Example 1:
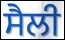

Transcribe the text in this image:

ਸੈਲੀ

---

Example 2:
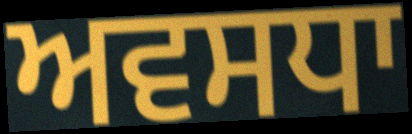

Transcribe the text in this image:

ਅਵਸਧਾ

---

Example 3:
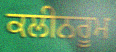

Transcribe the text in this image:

ਕਲੀਨਰੂਮ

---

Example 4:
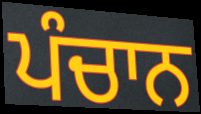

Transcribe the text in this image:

ਪੰਚਾਨ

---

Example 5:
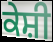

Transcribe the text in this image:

ਕੇਸ਼ੀ